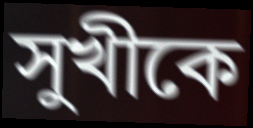
সুখীকে